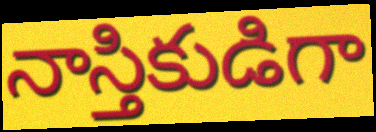
నాస్తికుడిగా